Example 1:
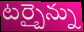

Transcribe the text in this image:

టర్బైన్ను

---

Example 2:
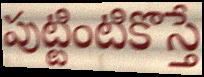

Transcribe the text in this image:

పుట్టింటికొస్తే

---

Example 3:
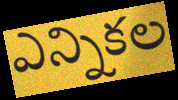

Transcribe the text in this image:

ఎన్నికల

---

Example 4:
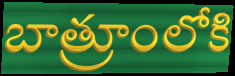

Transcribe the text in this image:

బాత్రూంలోకి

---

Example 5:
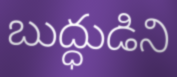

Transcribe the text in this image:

బుద్ధుడిని